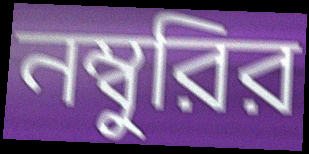
নম্বুরির